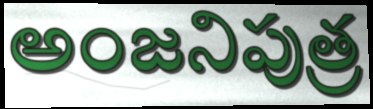
అంజనిపుత్ర